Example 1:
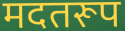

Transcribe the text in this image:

मदतरूप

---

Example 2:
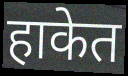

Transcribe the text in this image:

हाकेत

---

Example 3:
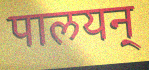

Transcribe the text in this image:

पालयन्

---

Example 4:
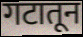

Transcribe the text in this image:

गटातून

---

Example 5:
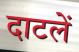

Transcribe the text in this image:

दाटलें